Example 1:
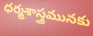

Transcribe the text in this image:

ధర్మశాస్త్రమునకు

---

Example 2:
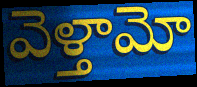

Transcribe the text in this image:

వెళ్తామో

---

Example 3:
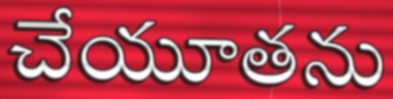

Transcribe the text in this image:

చేయూతను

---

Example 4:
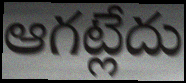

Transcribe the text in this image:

ఆగట్లేదు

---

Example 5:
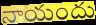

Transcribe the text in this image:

నాయందు